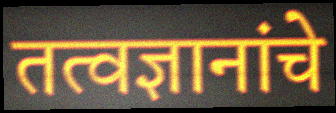
तत्वज्ञानांचे